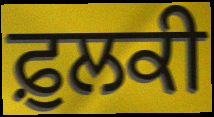
ਫ਼ੁਲਕੀ